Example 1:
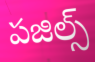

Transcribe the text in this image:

పజిల్స్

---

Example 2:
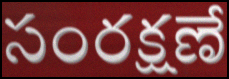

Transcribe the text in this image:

సంరక్షణే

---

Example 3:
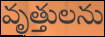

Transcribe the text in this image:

వృత్తులను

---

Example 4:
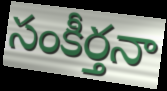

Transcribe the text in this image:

సంకీర్తనా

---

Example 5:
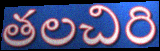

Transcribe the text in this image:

తలచిరి